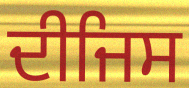
ਦੀਜਿਸ